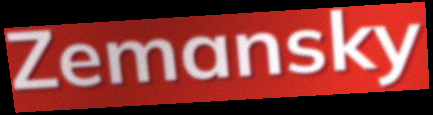
Zemansky